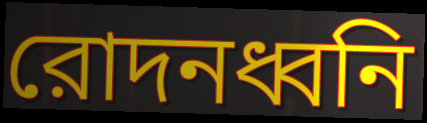
রোদনধ্বনি